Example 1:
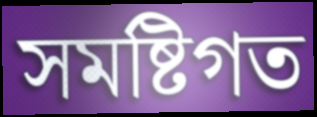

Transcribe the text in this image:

সমষ্টিগত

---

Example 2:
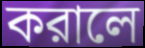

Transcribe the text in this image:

করালে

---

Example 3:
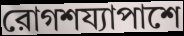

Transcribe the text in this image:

রোগশয্যাপাশে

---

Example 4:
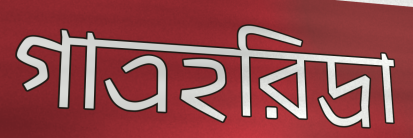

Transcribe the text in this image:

গাত্রহরিদ্রা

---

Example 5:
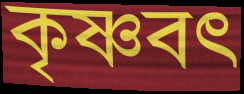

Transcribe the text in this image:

কৃষ্ণবৎ